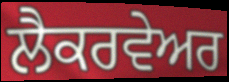
ਲੈਕਰਵੇਅਰ